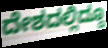
ದೇಶದಲ್ಲಿದ್ದೂ